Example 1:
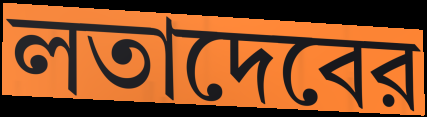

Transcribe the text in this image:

লতাদেবের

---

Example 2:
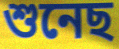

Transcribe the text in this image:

শুনেছ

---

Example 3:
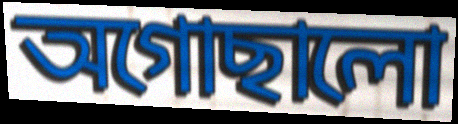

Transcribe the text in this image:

অগোছালো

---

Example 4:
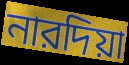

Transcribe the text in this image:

নারদিয়া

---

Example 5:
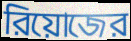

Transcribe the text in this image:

রিয়োজের